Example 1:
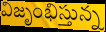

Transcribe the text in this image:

విజృంభిస్తున్న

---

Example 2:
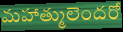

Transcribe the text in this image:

మహాత్ములెందరో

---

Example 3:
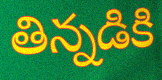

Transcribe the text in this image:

తిన్నడికి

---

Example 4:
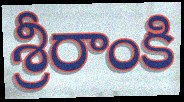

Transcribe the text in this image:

శ్రీరాంకి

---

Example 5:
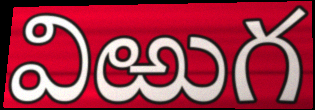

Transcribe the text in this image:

విఱుగ